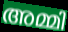
അമ്മി